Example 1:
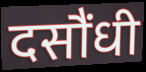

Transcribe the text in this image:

दसौंधी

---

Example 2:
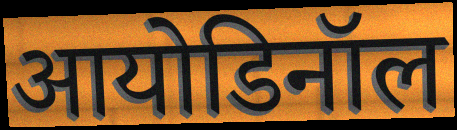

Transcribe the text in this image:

आयोडिनॉल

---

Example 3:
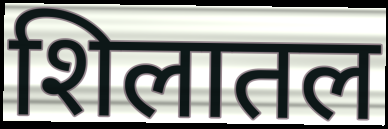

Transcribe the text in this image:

शिलातल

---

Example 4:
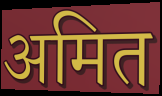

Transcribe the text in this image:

अमित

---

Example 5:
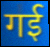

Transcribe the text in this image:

गई